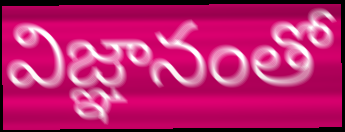
విజ్ఞానంతో